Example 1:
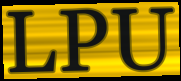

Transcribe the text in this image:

LPU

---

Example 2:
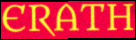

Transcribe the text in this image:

ERATH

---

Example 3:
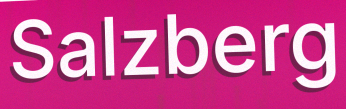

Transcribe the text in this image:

Salzberg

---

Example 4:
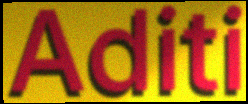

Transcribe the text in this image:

Aditi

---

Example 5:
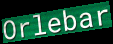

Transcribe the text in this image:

Orlebar